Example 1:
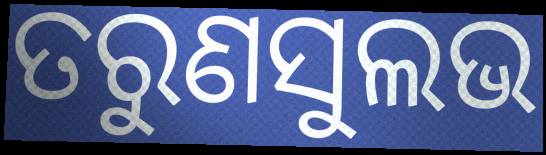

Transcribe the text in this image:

ତରୁଣସୁଲଭ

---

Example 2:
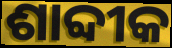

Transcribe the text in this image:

ଶାବ୍ଦୀକ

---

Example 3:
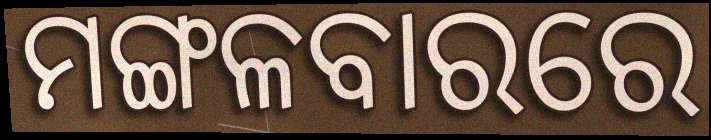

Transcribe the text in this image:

ମଙ୍ଗଳବାରରେ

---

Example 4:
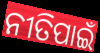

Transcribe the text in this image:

ନୀତିପାଇଁ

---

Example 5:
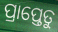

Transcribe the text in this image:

ପ୍ରାପ୍ତେତୁ